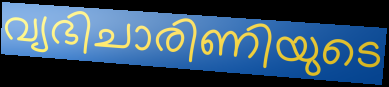
വ്യഭിചാരിണിയുടെ